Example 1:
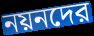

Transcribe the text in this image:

নয়নদের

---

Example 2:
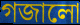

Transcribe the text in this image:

গজালো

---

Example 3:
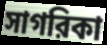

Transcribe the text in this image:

সাগরিকা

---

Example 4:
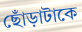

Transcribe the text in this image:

ছোঁড়াটাকে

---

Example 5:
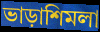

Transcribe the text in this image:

ভাড়াশিমলা